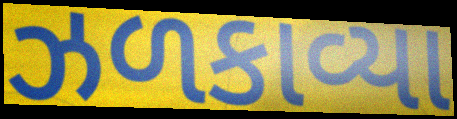
ઝળકાવ્યા